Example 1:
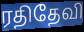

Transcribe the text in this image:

ரதிதேவி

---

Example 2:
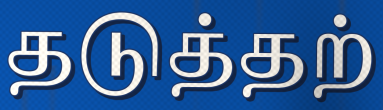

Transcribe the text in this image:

தடுத்தற்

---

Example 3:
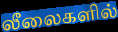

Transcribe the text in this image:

லீலைகளில்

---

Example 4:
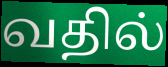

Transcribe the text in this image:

வதில்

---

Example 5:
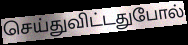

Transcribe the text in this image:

செய்துவிட்டதுபோல்